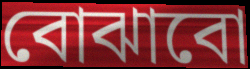
বোঝাবো